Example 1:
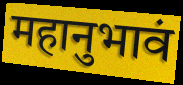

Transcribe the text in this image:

महानुभावं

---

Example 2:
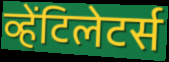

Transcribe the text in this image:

व्हेंटिलेटर्स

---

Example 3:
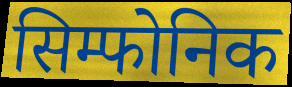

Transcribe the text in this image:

सिम्फोनिक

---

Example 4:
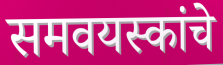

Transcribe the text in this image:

समवयस्कांचे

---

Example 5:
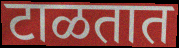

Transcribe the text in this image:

टाळतात